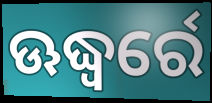
ଊଦ୍ଧ୍ୱର୍ରେ